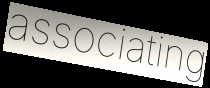
associating